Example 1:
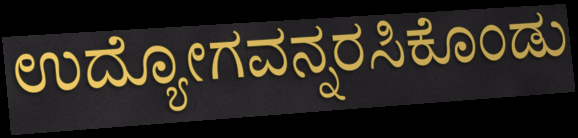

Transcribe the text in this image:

ಉದ್ಯೋಗವನ್ನರಸಿಕೊಂಡು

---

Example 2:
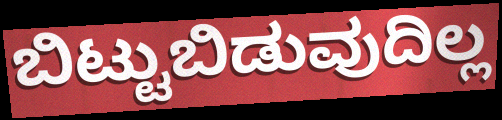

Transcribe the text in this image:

ಬಿಟ್ಟುಬಿಡುವುದಿಲ್ಲ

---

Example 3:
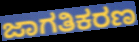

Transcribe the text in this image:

ಜಾಗತಿಕರಣ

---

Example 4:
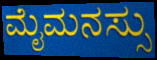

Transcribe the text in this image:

ಮೈಮನಸ್ಸು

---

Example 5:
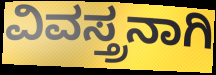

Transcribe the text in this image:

ವಿವಸ್ತ್ರನಾಗಿ